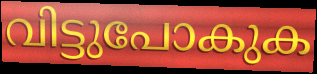
വിട്ടുപോകുക